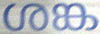
ശങ്ക